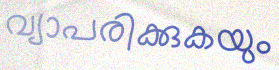
വ്യാപരിക്കുകയും